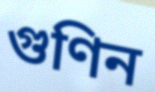
গুণিন